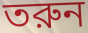
তরুন